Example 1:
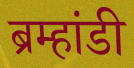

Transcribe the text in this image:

ब्रम्हांडी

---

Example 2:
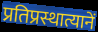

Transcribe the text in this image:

प्रतिप्रस्थात्यानें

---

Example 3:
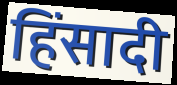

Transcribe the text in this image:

हिंसादी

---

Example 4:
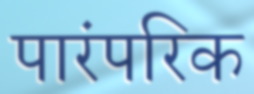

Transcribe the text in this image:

पारंपरिक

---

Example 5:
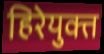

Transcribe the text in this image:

हिरेयुक्त